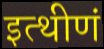
इत्थीणं